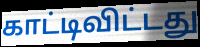
காட்டிவிட்டது